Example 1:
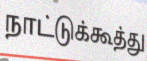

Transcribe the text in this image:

நாட்டுக்கூத்து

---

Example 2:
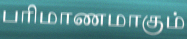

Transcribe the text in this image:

பரிமாணமாகும்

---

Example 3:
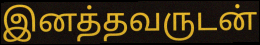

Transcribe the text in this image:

இனத்தவருடன்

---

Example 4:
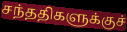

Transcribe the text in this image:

சந்ததிகளுக்குச்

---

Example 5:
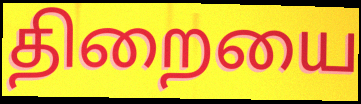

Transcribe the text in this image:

திறையை